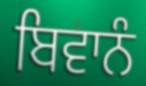
ਬਿਵਾਨੰ